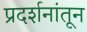
प्रदर्शनांतून